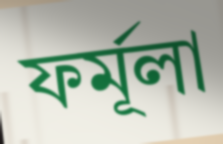
ফৰ্মূলা